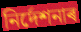
নিৰ্দেশনাৰ